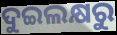
ଦୁଇଲକ୍ଷରୁ